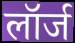
लॉर्ज